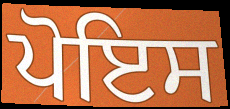
ਪੋਇਸ